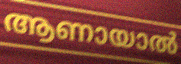
ആണായാൽ